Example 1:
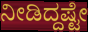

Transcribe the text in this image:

ನೀಡಿದ್ದಷ್ಟೇ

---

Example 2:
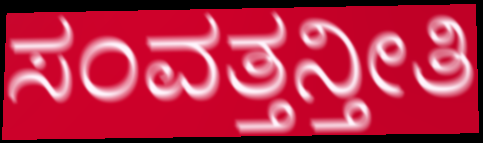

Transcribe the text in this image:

ಸಂವತ್ತನ್ತೀತಿ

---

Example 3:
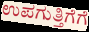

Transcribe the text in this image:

ಉಪಗುತ್ತಿಗೆಗೆ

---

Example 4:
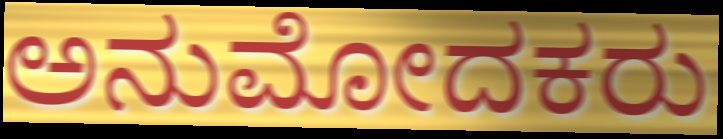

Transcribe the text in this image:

ಅನುಮೋದಕರು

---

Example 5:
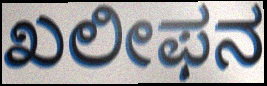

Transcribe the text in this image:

ಖಲೀಫನ